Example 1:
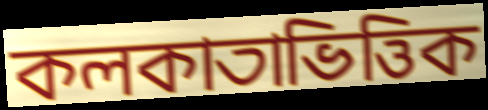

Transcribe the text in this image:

কলকাতাভিত্তিক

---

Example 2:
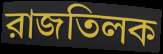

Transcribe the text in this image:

রাজতিলক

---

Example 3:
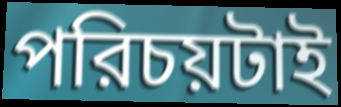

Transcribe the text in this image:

পরিচয়টাই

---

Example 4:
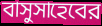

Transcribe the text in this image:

বাসুসাহেবের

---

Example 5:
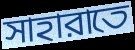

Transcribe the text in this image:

সাহারাতে